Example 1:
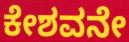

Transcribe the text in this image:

ಕೇಶವನೇ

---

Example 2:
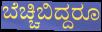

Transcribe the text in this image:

ಬೆಚ್ಚಿಬಿದ್ದರೂ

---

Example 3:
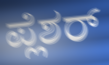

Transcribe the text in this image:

ಪ್ಲೆಶರ್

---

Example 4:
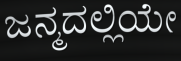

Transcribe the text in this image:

ಜನ್ಮದಲ್ಲಿಯೇ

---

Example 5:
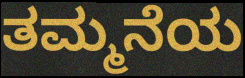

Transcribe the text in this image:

ತಮ್ಮನೆಯ